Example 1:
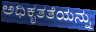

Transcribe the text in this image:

ಅಧಿಕೃತತೆಯನ್ನು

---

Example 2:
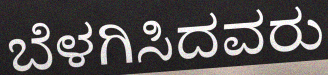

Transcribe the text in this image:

ಬೆಳಗಿಸಿದವರು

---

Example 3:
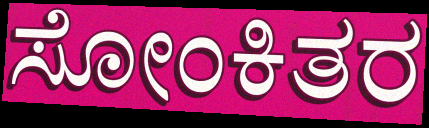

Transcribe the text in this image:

ಸೋಂಕಿತರ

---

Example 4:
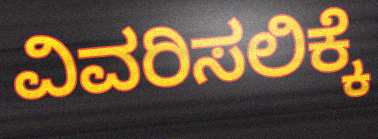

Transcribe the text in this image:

ವಿವರಿಸಲಿಕ್ಕೆ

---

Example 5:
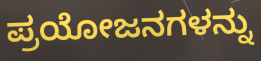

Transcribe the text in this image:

ಪ್ರಯೋಜನಗಳನ್ನು